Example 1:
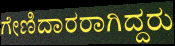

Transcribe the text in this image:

ಗೇಣಿದಾರರಾಗಿದ್ದರು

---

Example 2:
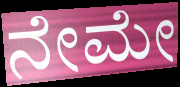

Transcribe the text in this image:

ನೇಮೇ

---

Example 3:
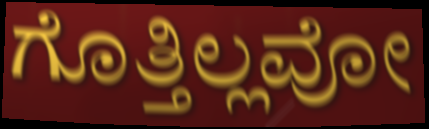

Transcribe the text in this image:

ಗೊತ್ತಿಲ್ಲವೋ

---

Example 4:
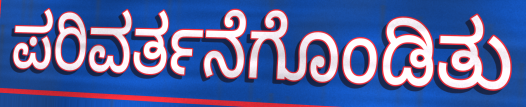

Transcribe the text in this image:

ಪರಿವರ್ತನೆಗೊಂಡಿತು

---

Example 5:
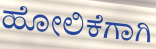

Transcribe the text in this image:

ಹೋಲಿಕೆಗಾಗಿ